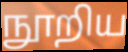
நூறிய